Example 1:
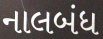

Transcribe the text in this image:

નાલબંધ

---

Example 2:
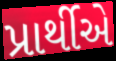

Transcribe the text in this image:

પ્રાર્થીએ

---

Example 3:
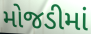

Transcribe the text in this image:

મોજડીમાં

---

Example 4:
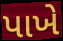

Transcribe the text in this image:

પાખે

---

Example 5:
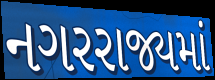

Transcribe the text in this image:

નગરરાજ્યમાં